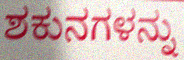
ಶಕುನಗಳನ್ನು